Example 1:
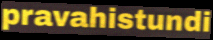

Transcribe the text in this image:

pravahistundi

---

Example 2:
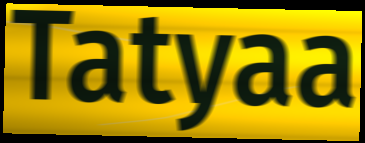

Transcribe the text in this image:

Tatyaa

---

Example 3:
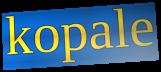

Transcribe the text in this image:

kopale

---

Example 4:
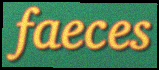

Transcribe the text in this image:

faeces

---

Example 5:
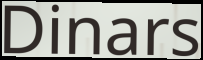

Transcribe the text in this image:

Dinars